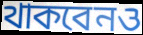
থাকবেনও